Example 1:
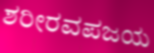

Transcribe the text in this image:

ಶರೀರವಪಜಯ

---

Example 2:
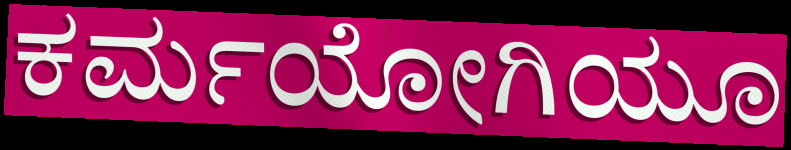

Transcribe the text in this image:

ಕರ್ಮಯೋಗಿಯೂ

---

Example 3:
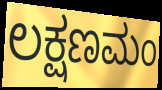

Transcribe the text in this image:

ಲಕ್ಷಣಮಂ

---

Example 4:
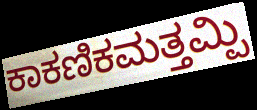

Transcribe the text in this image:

ಕಾಕಣಿಕಮತ್ತಮ್ಪಿ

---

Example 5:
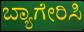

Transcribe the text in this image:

ಬ್ಯಾಗೇರಿಸಿ